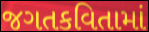
જગતકવિતામાં